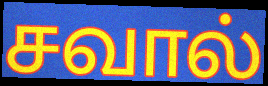
சவால்